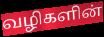
வழிகளின்